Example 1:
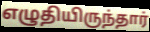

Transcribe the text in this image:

எழுதியிருந்தார்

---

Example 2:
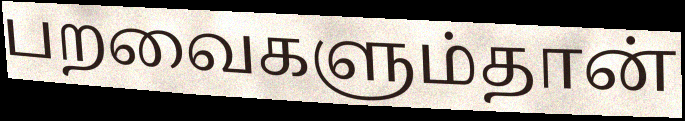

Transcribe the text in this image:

பறவைகளும்தான்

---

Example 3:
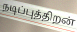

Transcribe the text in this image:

நடிப்புத்திறன்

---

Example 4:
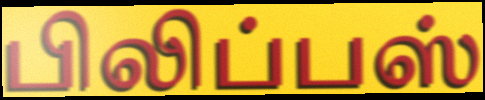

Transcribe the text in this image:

பிலிப்பஸ்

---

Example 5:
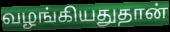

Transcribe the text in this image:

வழங்கியதுதான்